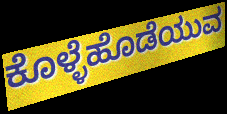
ಕೊಳ್ಳೆಹೊಡೆಯುವ